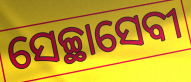
ସେଚ୍ଛାସେବୀ